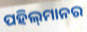
ପହିଲ୍‌ମାନର